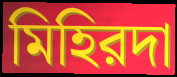
মিহিরদা